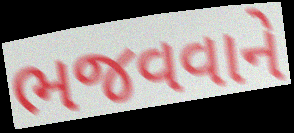
ભજવવાને